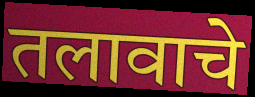
तलावाचे